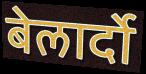
बेलार्दो